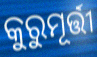
କୁରୁମୂର୍ତ୍ତୀ